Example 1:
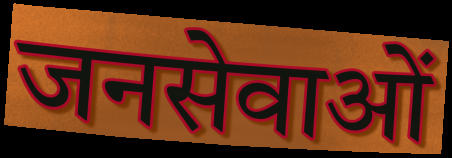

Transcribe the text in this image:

जनसेवाओं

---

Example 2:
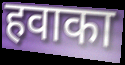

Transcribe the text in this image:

हवाका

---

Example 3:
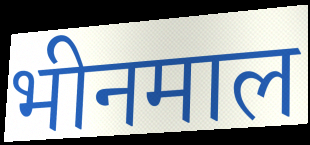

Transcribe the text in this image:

भीनमाल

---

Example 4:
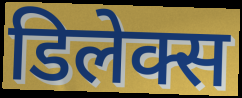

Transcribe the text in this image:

डिलेक्स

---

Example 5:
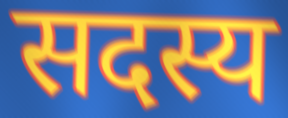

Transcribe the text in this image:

सदस्य